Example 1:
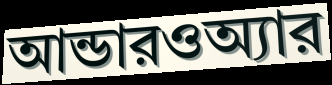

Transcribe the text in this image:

আন্ডারওঅ্যার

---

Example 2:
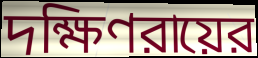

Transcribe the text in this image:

দক্ষিণরায়ের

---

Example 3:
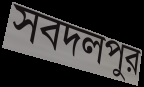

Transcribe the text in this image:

সবদলপুর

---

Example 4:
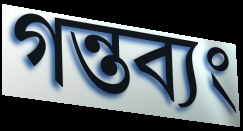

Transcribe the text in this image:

গন্তব্যং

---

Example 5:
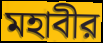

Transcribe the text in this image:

মহাবীর